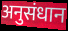
अनुसंधान